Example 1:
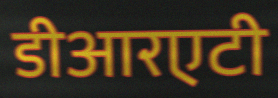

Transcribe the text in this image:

डीआरएटी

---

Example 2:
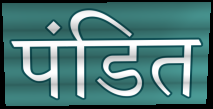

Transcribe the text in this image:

पंडित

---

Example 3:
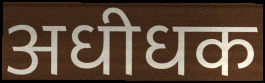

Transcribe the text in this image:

अधीधक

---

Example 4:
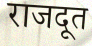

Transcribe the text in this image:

राजदूत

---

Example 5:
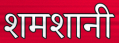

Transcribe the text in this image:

शमशानी